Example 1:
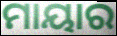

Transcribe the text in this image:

ମାୟାର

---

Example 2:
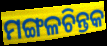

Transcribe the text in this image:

ମଙ୍ଗଳଚିନ୍ତକ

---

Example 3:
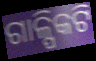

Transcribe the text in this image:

ଗାଳ୍ପିକଟି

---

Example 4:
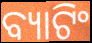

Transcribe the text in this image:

ବ୍ୟାଟିଂ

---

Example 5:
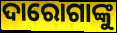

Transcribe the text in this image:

ଦାରୋଗାଙ୍କୁ